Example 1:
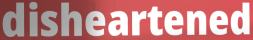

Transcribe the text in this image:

disheartened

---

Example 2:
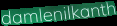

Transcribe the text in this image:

damlenilkanth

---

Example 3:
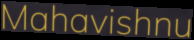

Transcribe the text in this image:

Mahavishnu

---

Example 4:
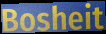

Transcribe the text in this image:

Bosheit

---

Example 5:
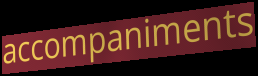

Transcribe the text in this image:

accompaniments